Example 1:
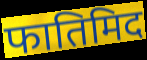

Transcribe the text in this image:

फातिमिद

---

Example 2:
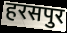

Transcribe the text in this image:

हरसपुर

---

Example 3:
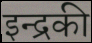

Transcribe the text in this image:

इन्द्रकी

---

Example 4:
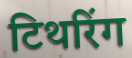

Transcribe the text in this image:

टिथरिंग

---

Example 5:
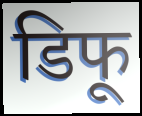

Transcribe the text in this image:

डिफू